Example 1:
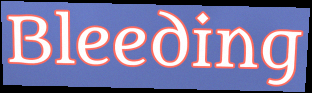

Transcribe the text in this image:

Bleeding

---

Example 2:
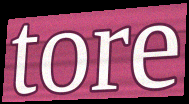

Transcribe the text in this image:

tore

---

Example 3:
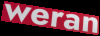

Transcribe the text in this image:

weran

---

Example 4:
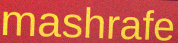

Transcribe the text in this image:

mashrafe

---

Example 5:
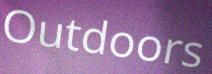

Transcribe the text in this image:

Outdoors